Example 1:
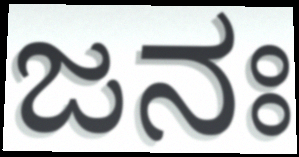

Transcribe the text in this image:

ಜನಃ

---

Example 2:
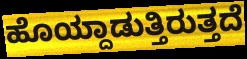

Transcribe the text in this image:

ಹೊಯ್ದಾಡುತ್ತಿರುತ್ತದೆ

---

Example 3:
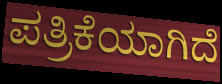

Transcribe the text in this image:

ಪತ್ರಿಕೆಯಾಗಿದೆ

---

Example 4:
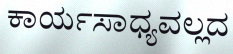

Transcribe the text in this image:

ಕಾರ್ಯಸಾಧ್ಯವಲ್ಲದ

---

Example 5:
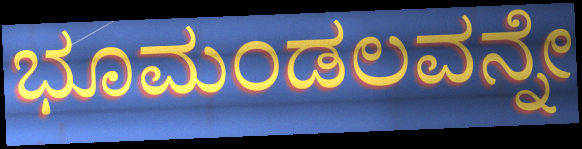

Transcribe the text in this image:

ಭೂಮಂಡಲವನ್ನೇ